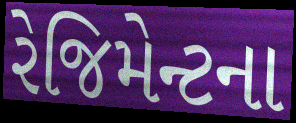
રેજિમેન્ટના